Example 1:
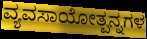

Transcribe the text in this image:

ವ್ಯವಸಾಯೋತ್ಪನ್ನಗಳ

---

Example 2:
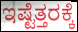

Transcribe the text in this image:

ಇಷ್ಟೆತ್ತರಕ್ಕೆ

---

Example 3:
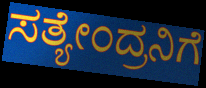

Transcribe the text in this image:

ಸತ್ಯೇಂದ್ರನಿಗೆ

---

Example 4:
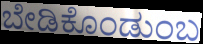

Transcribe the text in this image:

ಬೇಡಿಕೊಂಡುಂಬ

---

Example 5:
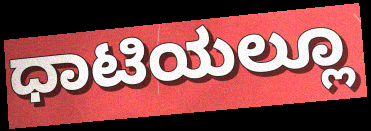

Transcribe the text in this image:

ಧಾಟಿಯಲ್ಲೂ